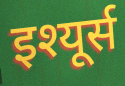
इश्यूर्स